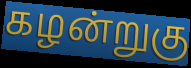
கழன்றுகு